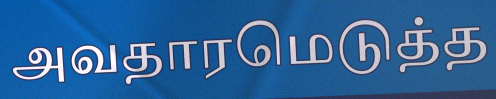
அவதாரமெடுத்த